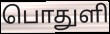
பொதுளி